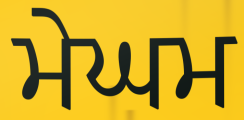
ਮੇਘਮ